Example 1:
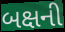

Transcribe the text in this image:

બક્ષની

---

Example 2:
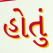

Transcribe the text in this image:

હોતું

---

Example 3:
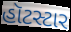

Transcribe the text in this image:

હૉટસ્ટાર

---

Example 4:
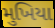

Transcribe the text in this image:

મુખિયા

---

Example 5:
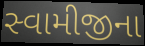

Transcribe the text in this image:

સ્વામીજીના